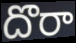
దొరా